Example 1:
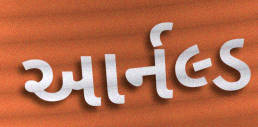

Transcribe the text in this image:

આર્નલ્ડ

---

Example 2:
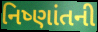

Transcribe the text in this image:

નિષ્ણાંતની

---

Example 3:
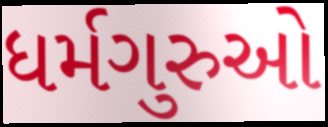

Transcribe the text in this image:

ધર્મગુરુઓ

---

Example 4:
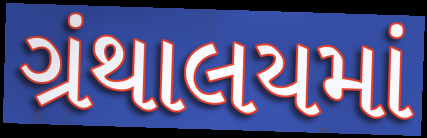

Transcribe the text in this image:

ગ્રંથાલયમાં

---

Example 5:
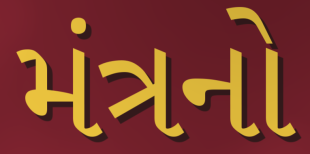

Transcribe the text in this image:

મંત્રનો